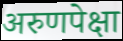
अरुणपेक्षा